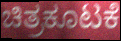
ಚಿತ್ರಕೂಟಕೆ